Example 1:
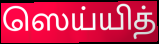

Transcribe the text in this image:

ஸெய்யித்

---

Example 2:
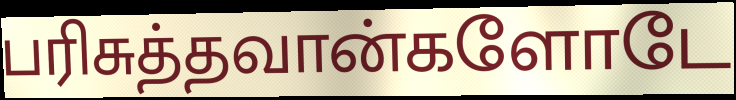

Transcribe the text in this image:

பரிசுத்தவான்களோடே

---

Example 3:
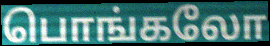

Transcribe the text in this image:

பொங்கலோ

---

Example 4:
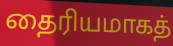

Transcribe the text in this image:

தைரியமாகத்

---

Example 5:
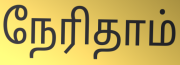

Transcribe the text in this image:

நேரிதாம்